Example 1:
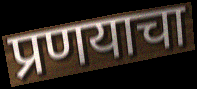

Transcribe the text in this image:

प्रणयाचा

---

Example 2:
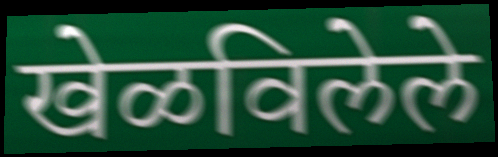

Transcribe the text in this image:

खेळविलेले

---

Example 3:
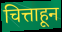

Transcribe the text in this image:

चित्ताहून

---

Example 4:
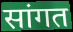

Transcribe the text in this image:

सांगत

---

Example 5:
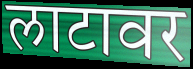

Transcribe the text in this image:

लाटावर